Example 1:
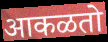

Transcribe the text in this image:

आकळतो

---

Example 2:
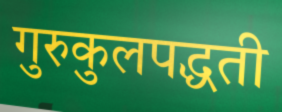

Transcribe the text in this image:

गुरुकुलपद्धती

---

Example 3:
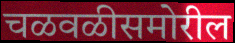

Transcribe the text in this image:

चळवळीसमोरील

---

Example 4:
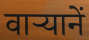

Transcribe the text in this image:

वार्‍यानें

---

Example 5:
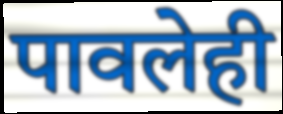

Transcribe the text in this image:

पावलेही